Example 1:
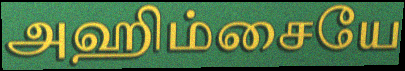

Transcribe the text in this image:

அஹிம்சையே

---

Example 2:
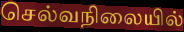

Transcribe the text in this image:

செல்வநிலையில்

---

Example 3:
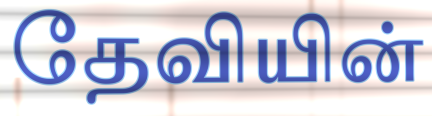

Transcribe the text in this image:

தேவியின்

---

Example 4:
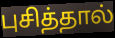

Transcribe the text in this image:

புசித்தால்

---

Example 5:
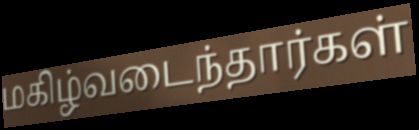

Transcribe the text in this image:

மகிழ்வடைந்தார்கள்